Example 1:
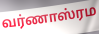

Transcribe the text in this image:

வர்ணாஸ்ரம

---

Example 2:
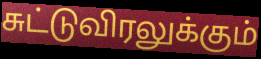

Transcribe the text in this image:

சுட்டுவிரலுக்கும்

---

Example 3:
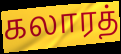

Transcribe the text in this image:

கலாரத்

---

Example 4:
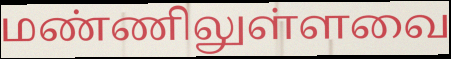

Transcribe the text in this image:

மண்ணிலுள்ளவை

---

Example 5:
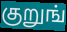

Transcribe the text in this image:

குறுங்